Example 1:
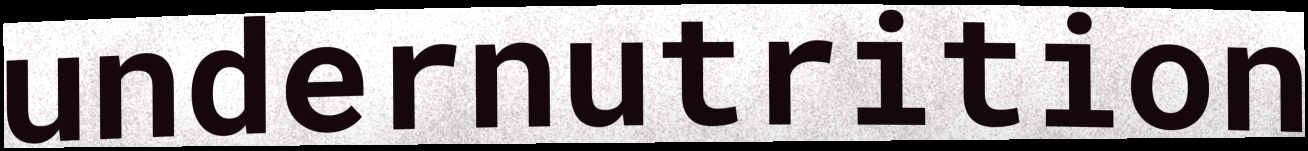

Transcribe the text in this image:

undernutrition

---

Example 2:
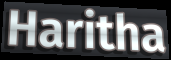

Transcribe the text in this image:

Haritha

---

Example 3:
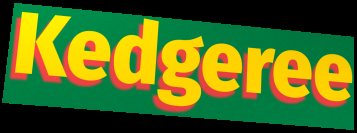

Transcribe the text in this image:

Kedgeree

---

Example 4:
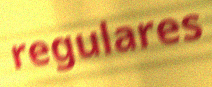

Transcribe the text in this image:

regulares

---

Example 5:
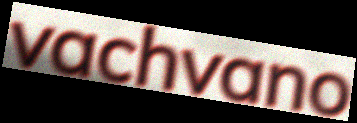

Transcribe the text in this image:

vachvano